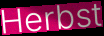
Herbst